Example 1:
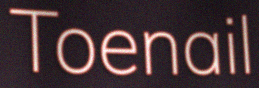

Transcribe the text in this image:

Toenail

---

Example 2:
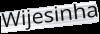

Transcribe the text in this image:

Wijesinha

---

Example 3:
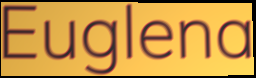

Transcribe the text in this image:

Euglena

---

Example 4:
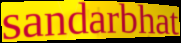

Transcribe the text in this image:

sandarbhat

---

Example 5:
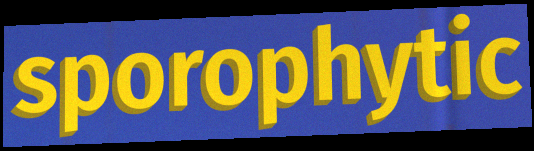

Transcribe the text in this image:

sporophytic